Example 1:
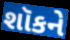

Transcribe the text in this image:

શૉકને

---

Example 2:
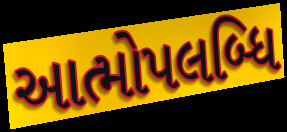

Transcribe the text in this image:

આત્મોપલબ્ધિ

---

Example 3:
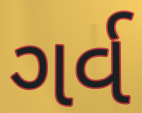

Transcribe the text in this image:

ગર્વ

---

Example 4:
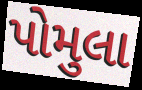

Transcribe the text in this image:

પોમુલા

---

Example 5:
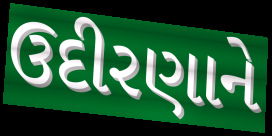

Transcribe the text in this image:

ઉદીરણાને